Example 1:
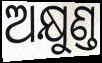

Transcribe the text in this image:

ଅକ୍ଷୁଣ୍ଡ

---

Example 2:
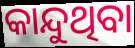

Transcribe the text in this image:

କାନ୍ଦୁଥିବା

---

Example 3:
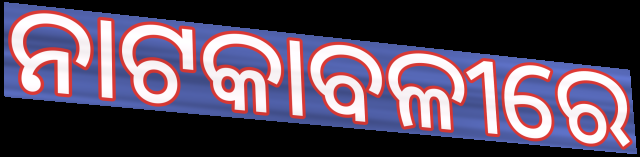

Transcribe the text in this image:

ନାଟକାବଳୀରେ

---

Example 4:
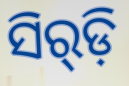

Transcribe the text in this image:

ସିର୍‌ଡ଼ି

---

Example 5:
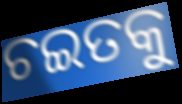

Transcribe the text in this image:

ଚଇତକୁ